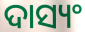
ଦାସ୍ୟଂ